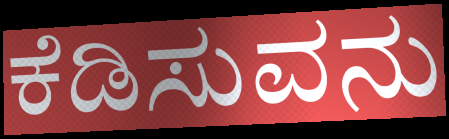
ಕೆಡಿಸುವನು